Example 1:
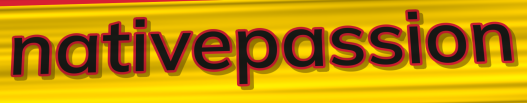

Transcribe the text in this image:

nativepassion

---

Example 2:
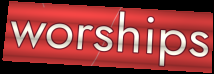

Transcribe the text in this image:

worships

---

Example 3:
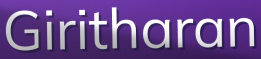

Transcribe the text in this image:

Giritharan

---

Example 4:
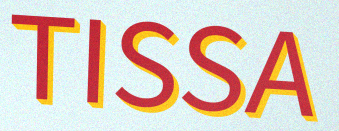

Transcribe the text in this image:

TISSA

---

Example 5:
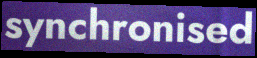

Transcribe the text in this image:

synchronised